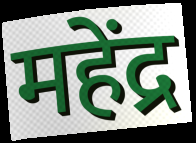
महेंद्र